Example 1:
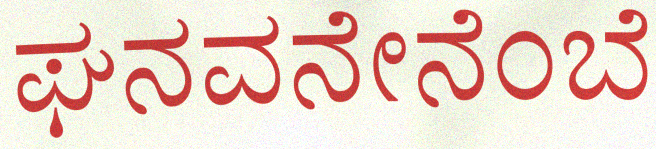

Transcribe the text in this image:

ಘನವನೇನೆಂಬೆ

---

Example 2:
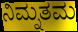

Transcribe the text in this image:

ನಿಮ್ನತಮ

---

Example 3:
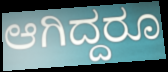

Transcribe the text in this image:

ಆಗಿದ್ದರೂ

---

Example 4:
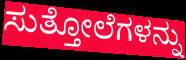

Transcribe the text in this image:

ಸುತ್ತೋಲೆಗಳನ್ನು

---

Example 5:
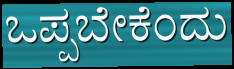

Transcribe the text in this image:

ಒಪ್ಪಬೇಕೆಂದು